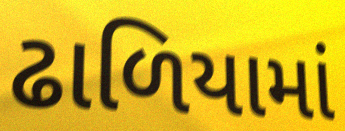
ઢાળિયામાં